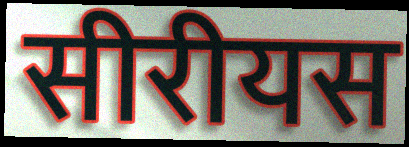
सीरीयस